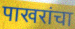
पाखरांचा